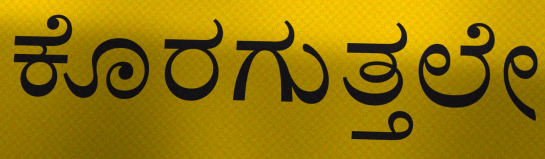
ಕೊರಗುತ್ತಲೇ